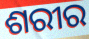
ଶରୀର